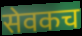
सेवकच